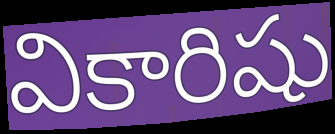
వికారిషు